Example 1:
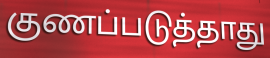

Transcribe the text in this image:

குணப்படுத்தாது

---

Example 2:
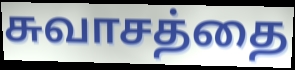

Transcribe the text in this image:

சுவாசத்தை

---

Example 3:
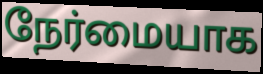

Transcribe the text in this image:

நேர்மையாக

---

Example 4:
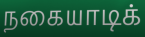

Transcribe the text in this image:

நகையாடிக்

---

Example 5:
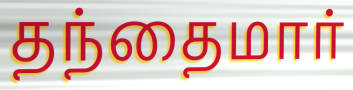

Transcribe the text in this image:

தந்தைமார்